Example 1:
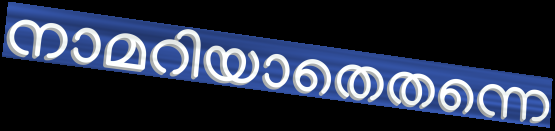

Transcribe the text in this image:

നാമറിയാതെതന്നെ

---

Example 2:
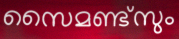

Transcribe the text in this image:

സൈമണ്ട്സും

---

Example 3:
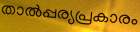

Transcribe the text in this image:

താൽപ്പര്യപ്രകാരം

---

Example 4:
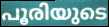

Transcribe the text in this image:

പൂരിയുടെ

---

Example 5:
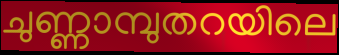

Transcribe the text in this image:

ചുണ്ണാമ്പുതറയിലെ